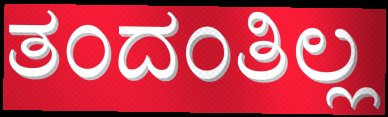
ತಂದಂತಿಲ್ಲ